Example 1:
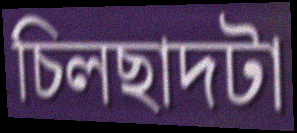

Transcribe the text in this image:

চিলছাদটা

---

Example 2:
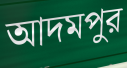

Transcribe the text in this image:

আদমপুর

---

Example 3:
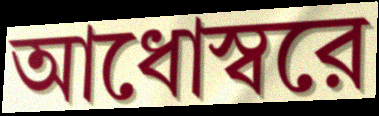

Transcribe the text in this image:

আধোস্বরে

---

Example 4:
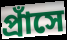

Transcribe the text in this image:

প্রাঁসে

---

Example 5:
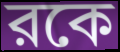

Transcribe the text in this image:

রকে